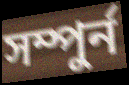
সম্পুৰ্ন